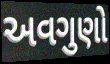
અવગુણો